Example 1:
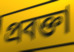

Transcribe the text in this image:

প্রবক্তা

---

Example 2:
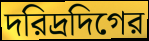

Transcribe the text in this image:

দরিদ্রদিগের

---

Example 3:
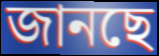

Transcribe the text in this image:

জানছে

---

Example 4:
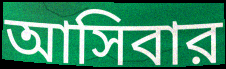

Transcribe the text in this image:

আসিবার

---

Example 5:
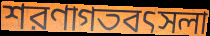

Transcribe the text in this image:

শরণাগতবৎসলা